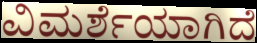
ವಿಮರ್ಶೆಯಾಗಿದೆ